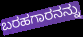
ಬರಹಗಾರನನ್ನು